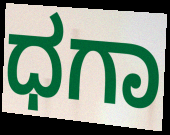
ಧಗಾ